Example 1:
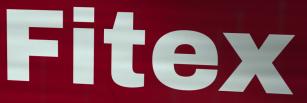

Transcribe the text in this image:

Fitex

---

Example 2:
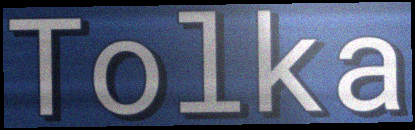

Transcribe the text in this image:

Tolka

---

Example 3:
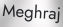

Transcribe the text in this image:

Meghraj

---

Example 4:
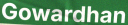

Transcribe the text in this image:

Gowardhan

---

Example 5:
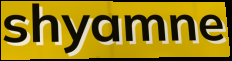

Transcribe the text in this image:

shyamne